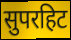
सुपरहिट